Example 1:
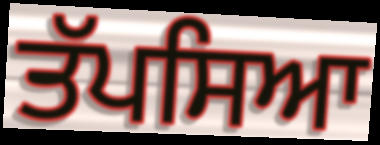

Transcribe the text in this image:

ਤੱਪਸਿਆ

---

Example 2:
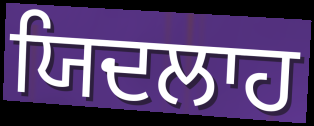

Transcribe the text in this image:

ਯਿਦਲਾਹ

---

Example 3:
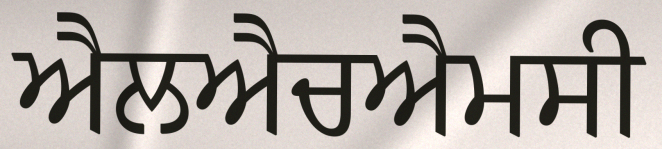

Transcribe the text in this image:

ਐਲਐਚਐਮਸੀ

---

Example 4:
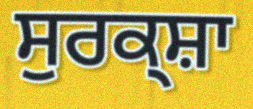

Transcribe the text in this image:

ਸੁਰਕ੍ਸ਼ਾ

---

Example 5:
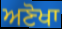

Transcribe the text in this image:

ਅਣੋਖਾ